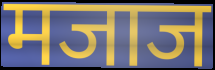
मजाज